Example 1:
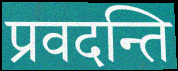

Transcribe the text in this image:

प्रवदन्ति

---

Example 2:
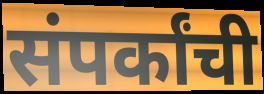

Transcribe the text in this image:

संपर्कांची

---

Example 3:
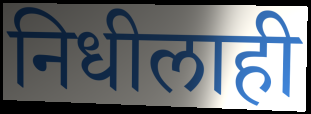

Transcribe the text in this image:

निधीलाही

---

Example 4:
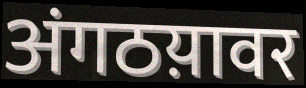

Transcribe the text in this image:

अंगठय़ावर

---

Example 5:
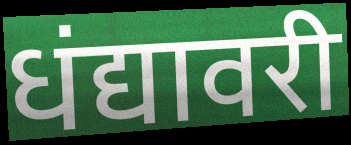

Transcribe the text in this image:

धंद्यावरी